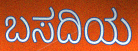
ಬಸದಿಯ